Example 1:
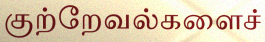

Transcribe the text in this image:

குற்றேவல்களைச்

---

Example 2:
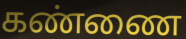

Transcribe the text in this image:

கண்ணை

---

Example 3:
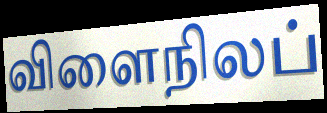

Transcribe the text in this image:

விளைநிலப்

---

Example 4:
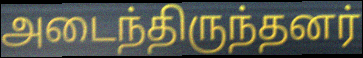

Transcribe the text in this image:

அடைந்திருந்தனர்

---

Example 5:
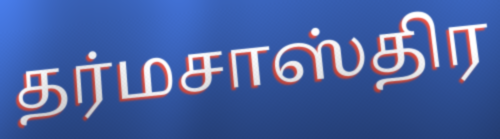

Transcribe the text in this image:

தர்மசாஸ்திர